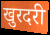
खुरदरी